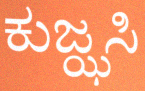
ಕುಜ್ಝಸಿ